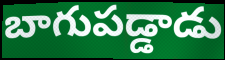
బాగుపడ్డాడు